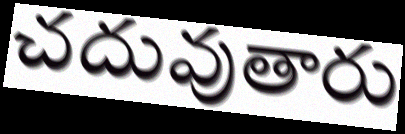
చదువుతారు